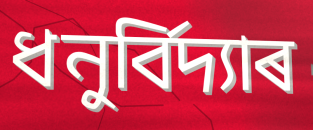
ধনুৰ্বিদ্যাৰ